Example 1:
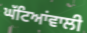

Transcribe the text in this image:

ਘੱਟਿਆਂਵਾਲੀ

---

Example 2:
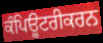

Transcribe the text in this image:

ਕੰਪਿਊਟਰੀਕਰਨ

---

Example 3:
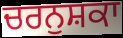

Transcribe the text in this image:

ਚਰਨੁਸ਼ਕਾ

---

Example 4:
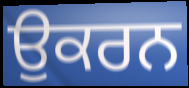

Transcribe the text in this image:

ਉਕਰਨ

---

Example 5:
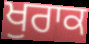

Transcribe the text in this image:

ਖੁਰਾਕ